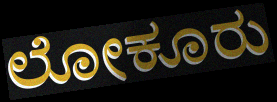
ಲೋಕೂರು